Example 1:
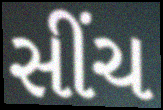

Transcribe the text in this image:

સીંચ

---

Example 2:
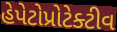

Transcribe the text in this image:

હેપેટોપ્રોટેક્ટીવ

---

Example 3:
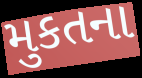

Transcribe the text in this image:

મુકતના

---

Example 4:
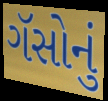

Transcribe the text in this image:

ગૅસોનું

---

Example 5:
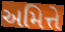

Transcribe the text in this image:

અમિત્તે